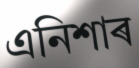
এনিশাৰ